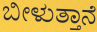
ಬೀಳುತ್ತಾನೆ